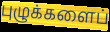
புழுக்களைப்